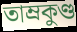
তাম্রকুণ্ড